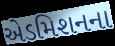
એડમિશનના